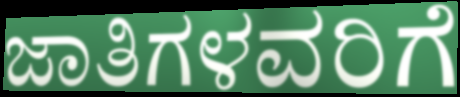
ಜಾತಿಗಳವರಿಗೆ